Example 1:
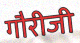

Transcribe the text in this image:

गौरीजी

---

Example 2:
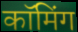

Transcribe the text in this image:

कॉमिंग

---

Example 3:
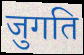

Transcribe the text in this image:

जुगति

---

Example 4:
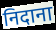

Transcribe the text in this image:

निदाना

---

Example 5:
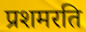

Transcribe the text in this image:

प्रशमरति